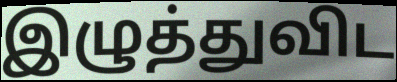
இழுத்துவிட